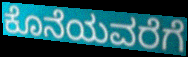
ಕೊನೆಯವರೆಗೆ